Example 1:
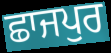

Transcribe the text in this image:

ਛਾਜਪੁਰ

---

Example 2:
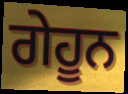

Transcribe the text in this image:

ਗੇਹੂਨ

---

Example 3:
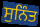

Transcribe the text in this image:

ਸੁਨਿੰਤ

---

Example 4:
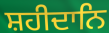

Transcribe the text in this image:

ਸ਼ਹੀਦਾਨਿ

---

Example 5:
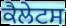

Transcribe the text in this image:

ਕੈਲੇਟਸ